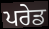
ਪਰੇਡ